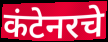
कंटेनरचे